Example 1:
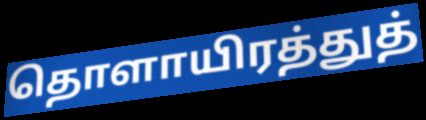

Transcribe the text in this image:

தொளாயிரத்துத்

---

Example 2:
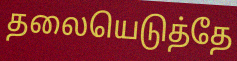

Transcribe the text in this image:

தலையெடுத்தே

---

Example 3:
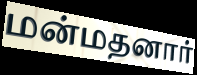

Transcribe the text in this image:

மன்மதனார்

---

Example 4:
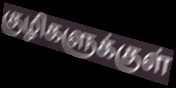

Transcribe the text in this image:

குழிகளுக்குள்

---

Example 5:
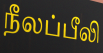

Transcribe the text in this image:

நீலப்பீலி